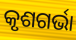
କୃଶଗର୍ଭା